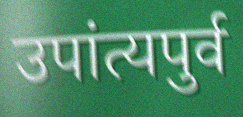
उपांत्यपुर्व